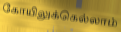
கோயிலுக்கெல்லாம்